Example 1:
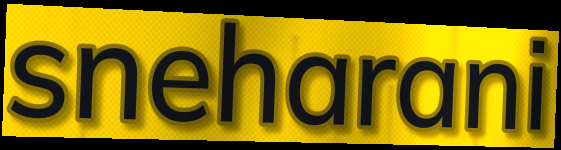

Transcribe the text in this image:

sneharani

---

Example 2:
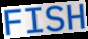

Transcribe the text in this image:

FISH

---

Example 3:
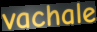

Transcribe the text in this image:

vachale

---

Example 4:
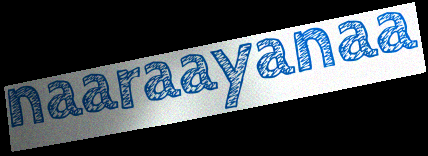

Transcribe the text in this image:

naaraayanaa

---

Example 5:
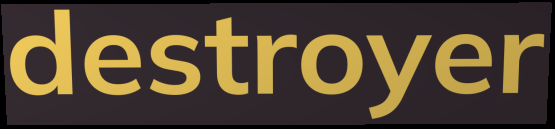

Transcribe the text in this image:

destroyer